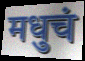
मधुचं